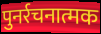
पुनर्रचनात्मक